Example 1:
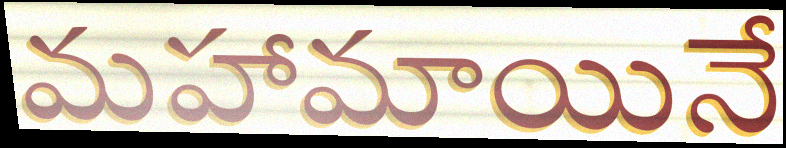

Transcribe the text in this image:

మహామాయినే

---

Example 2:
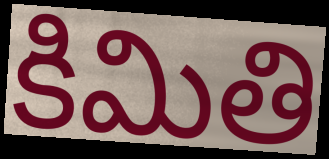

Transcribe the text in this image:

కిమితి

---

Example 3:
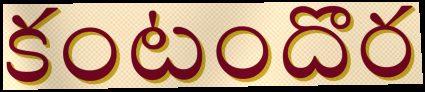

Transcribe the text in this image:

కంటందొర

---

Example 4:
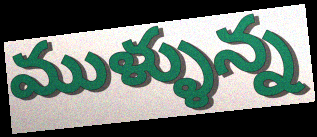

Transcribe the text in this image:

ముళ్ళున్న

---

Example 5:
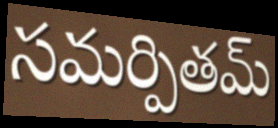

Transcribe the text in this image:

సమర్పితమ్